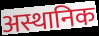
अस्थानिक